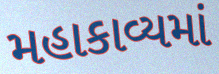
મહાકાવ્યમાં